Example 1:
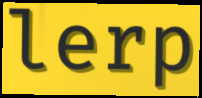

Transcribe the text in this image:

lerp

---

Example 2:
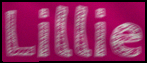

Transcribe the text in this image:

Lillie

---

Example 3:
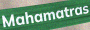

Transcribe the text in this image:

Mahamatras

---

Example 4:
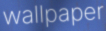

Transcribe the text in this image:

wallpaper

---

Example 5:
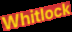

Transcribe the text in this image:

Whitlock